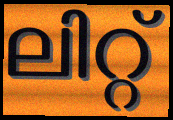
ലിറ്റ്